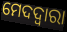
ମେଦଦ୍ଵାରା